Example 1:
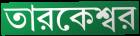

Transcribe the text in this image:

তারকেশ্বর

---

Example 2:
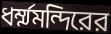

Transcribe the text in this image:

ধর্ম্মমন্দিরের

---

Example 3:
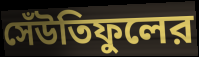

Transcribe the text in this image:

সেঁউতিফুলের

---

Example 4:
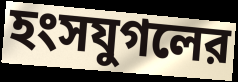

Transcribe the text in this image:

হংসযুগলের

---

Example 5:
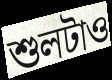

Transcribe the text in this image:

শুলটাও